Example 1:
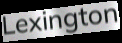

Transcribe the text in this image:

Lexington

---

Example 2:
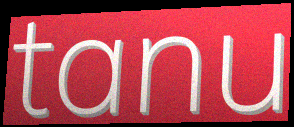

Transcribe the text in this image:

tanu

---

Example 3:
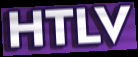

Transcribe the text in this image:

HTLV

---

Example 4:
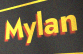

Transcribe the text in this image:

Mylan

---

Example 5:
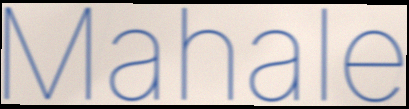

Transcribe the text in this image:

Mahale